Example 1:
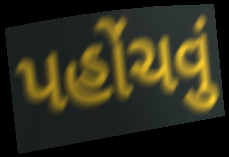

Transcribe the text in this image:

પહોંચવું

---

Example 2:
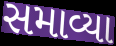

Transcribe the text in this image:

સમાવ્યા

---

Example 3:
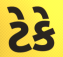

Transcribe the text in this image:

ટેકે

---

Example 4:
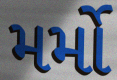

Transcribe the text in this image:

મર્મો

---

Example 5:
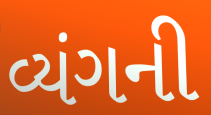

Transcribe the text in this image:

વ્યંગની